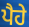
ਪੈਹੇ